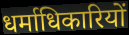
धर्माधिकारियों